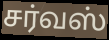
சர்வஸ்